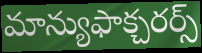
మాన్యుఫాక్చరర్స్